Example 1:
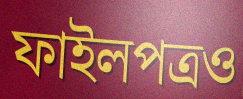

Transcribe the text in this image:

ফাইলপত্রও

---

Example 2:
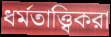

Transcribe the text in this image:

ধর্মতাত্ত্বিকরা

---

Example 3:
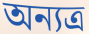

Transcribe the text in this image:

অন্যত্র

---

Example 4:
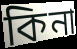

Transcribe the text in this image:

কিনা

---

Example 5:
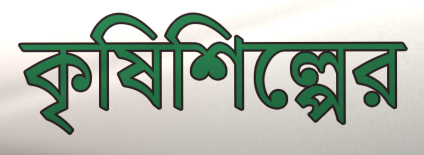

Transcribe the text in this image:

কৃষিশিল্পের